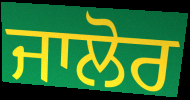
ਜਾਲੋਰ